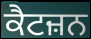
ਕੈਟਜ਼ਨ